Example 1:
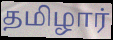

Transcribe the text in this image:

தமிழார்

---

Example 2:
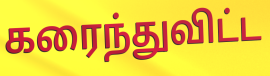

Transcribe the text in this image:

கரைந்துவிட்ட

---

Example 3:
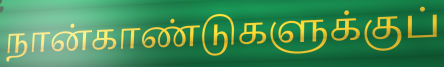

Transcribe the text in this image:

நான்காண்டுகளுக்குப்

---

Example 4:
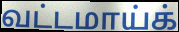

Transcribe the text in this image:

வட்டமாய்க்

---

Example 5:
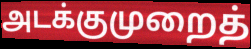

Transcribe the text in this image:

அடக்குமுறைத்